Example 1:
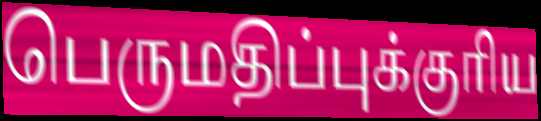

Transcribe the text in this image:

பெருமதிப்புக்குரிய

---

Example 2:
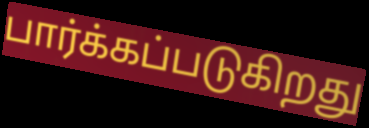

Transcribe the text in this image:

பார்க்கப்படுகிறது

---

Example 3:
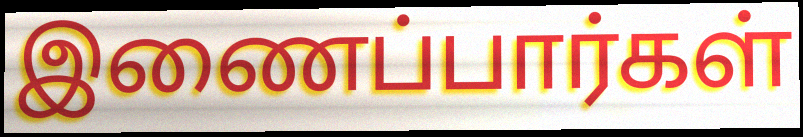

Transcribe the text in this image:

இணைப்பார்கள்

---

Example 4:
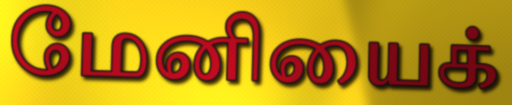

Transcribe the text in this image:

மேனியைக்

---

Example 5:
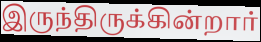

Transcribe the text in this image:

இருந்திருக்கின்றார்